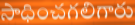
సాధించగలిగారు